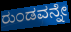
ರುಂಡವನ್ನೇ